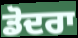
ਡੋਦਰਾ